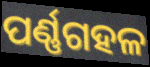
ପର୍ଣ୍ଣଗହଳ